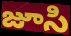
జూసి